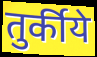
तुर्कीये